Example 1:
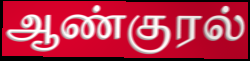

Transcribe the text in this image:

ஆண்குரல்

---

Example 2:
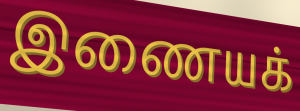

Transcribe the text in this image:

இணையக்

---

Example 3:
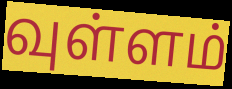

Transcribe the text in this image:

வுள்ளம்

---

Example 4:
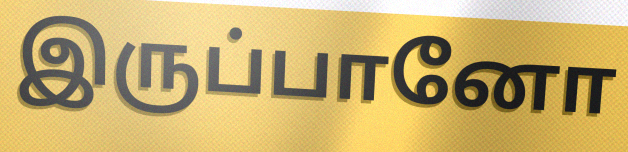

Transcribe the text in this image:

இருப்பானோ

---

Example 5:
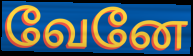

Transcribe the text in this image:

வேனே